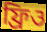
ফ্রিও